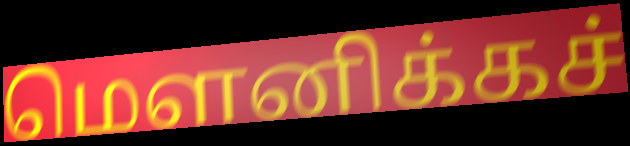
மௌனிக்கச்